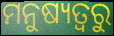
ମନୁଷ୍ୟତ୍ୱରୁ